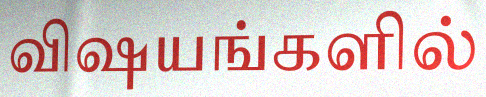
விஷயங்களில்